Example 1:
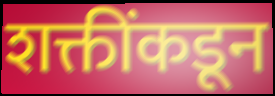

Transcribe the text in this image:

शक्तींकडून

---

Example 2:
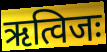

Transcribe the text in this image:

ऋत्विजः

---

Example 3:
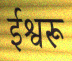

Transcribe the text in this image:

ईश्वरू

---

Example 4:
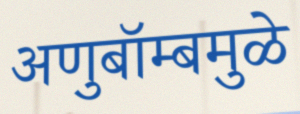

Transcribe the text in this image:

अणुबॉम्बमुळे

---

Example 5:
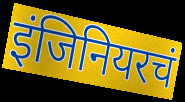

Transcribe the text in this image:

इंजिनियरचं